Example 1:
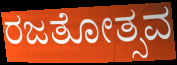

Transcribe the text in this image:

ರಜತೋತ್ಸವ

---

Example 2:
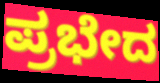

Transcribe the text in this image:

ಪ್ರಭೇದ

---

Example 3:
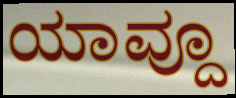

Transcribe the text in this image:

ಯಾವ್ದೂ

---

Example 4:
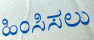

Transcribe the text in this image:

ಹಿಂಸಿಸಲು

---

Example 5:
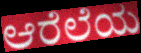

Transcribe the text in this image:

ಆರೆಲೆಯ